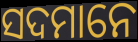
ସଦମାନେ